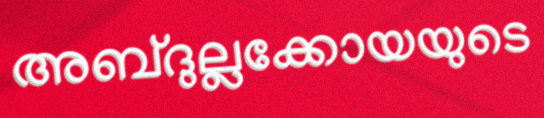
അബ്ദുല്ലക്കോയയുടെ